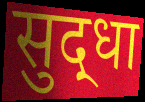
सुद्धा